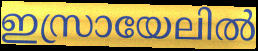
ഇസ്രായേലിൽ